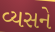
વ્યસને